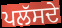
ਪਲੱਸਦੇ